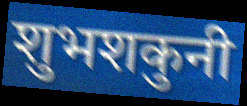
शुभशकुनी